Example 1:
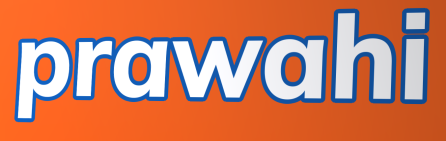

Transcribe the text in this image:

prawahi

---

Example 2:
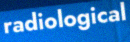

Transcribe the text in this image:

radiological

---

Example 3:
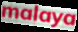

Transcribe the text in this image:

malaya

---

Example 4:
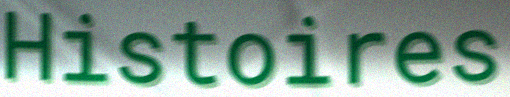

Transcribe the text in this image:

Histoires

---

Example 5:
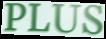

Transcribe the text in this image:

PLUS